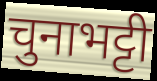
चुनाभट्टी